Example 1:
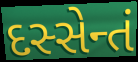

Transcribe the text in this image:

દસ્સેન્તં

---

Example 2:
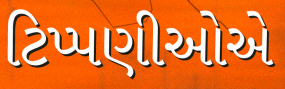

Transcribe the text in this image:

ટિપ્પણીઓએ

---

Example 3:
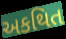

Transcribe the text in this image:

અકથિત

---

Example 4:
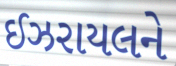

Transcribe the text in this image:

ઈઝરાયલને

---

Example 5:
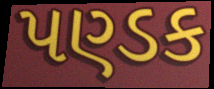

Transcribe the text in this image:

પણ્ડક